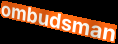
ombudsman